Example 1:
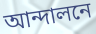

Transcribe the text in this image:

আন্দালনে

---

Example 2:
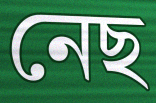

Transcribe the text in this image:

নেছ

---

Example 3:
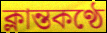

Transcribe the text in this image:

ক্লান্তকণ্ঠে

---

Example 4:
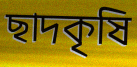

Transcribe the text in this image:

ছাদকৃষি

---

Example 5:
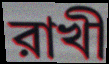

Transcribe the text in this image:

রাখী